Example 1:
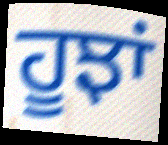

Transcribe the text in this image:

ਹੂਝਾਂ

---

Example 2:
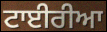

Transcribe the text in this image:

ਟਾਈਰੀਆ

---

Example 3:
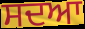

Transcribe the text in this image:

ਸਦਆ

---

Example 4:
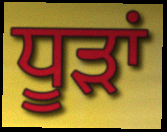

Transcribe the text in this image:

ਧੂੜਾਂ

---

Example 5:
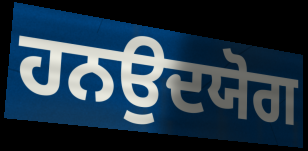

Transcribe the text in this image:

ਹਨਉਦਯੋਗ